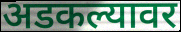
अडकल्यावर